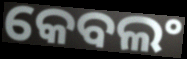
କେବଲଂ